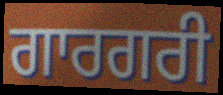
ਗਾਰਗਰੀ